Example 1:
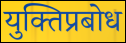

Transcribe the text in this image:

युक्तिप्रबोध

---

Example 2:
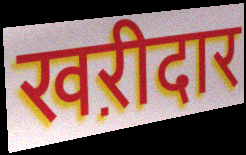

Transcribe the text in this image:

खऱीदार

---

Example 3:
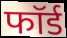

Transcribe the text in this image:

फॉर्ड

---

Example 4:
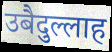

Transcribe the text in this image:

उबैदुल्लाह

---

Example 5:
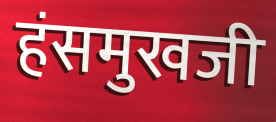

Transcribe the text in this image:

हंसमुखजी